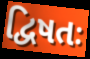
દ્વિષતઃ